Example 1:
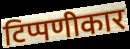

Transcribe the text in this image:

टिप्पणीकार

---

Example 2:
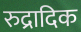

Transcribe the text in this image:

रुद्रादिक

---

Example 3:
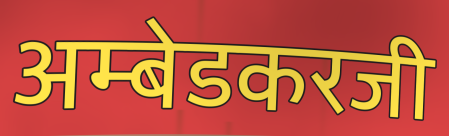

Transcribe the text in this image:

अम्बेडकरजी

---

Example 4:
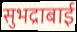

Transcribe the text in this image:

सुभद्राबाई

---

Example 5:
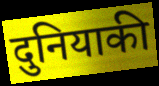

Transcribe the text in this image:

दुनियाकी